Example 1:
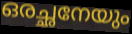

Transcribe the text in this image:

ഒരച്ഛനേയും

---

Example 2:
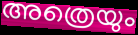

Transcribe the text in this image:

അത്രെയും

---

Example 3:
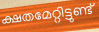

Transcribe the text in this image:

ക്ഷതമേറ്റിട്ടുണ്ട്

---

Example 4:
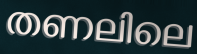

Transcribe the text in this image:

തണലിലെ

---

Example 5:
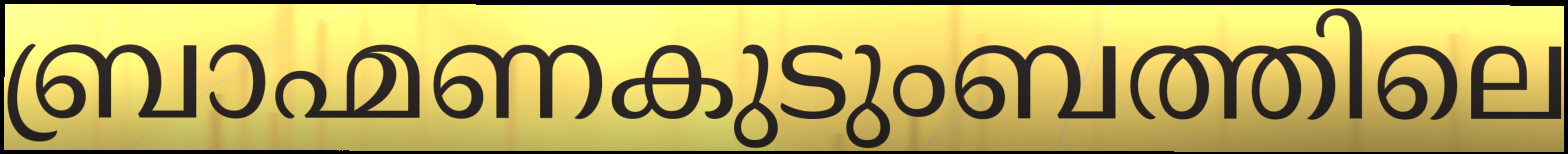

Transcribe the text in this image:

ബ്രാഹ്മണകുടുംബത്തിലെ